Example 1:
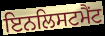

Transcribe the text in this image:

ਇਨਲਿਸਟਮੈਂਟ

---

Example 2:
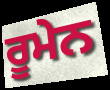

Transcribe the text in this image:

ਰੂਮੇਨ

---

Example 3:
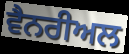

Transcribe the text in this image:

ਵੈਨਰੀਅਲ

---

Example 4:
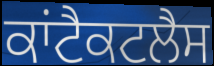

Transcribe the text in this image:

ਕਾਂਟੈਕਟਲੈਸ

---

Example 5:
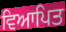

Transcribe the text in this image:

ਵਿਆਪਿਤ